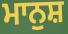
ਮਾਨੁਸ਼